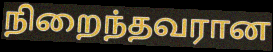
நிறைந்தவரான